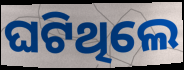
ଘଟିଥିଲେ